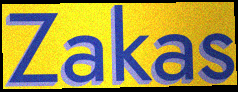
Zakas